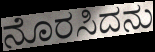
ನೊರಸಿದನು